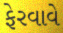
ફેરવાવે